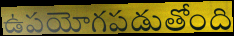
ఉపయోగపడుతోంది